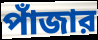
পাঁজার